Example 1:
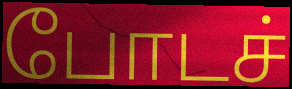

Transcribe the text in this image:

போடச்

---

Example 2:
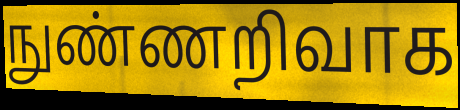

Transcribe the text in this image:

நுண்ணறிவாக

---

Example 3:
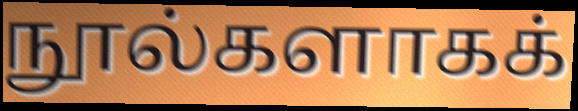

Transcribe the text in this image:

நூல்களாகக்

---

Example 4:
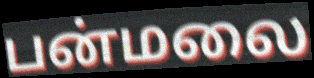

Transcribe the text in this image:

பன்மலை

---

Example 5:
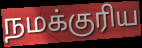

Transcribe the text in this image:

நமக்குரிய